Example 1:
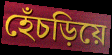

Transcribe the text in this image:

হেঁচড়িয়ে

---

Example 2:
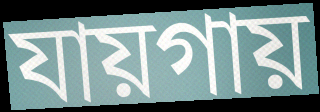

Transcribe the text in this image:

যায়গায়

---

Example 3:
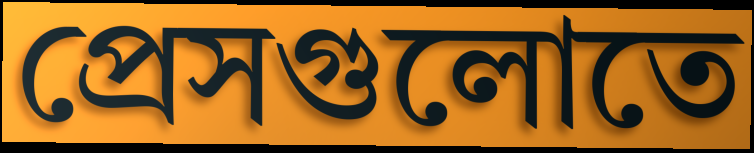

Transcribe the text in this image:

প্রেসগুলোতে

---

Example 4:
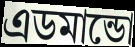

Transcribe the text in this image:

এডমান্ডো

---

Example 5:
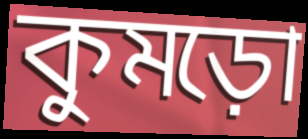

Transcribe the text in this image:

কুমড়ো